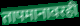
तापमानावरही